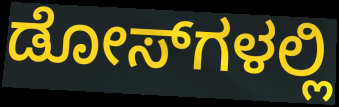
ಡೋಸ್‌ಗಳಲ್ಲಿ